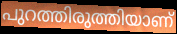
പുറത്തിരുത്തിയാണ്